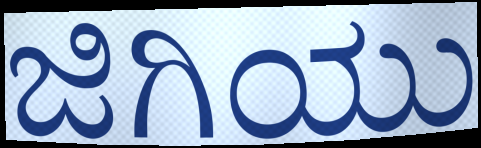
ಜಿಗಿಯು